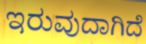
ಇರುವುದಾಗಿದೆ